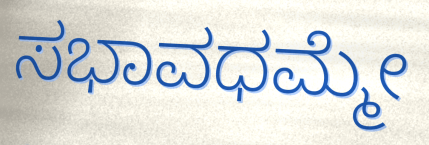
ಸಭಾವಧಮ್ಮೇ